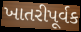
ખાતરીપૂર્વક